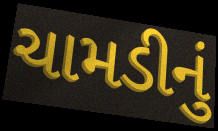
ચામડીનું